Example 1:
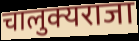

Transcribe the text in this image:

चालुक्यराजा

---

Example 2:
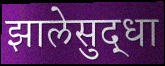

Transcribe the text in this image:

झालेसुद्धा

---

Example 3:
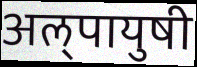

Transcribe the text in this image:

अल्पायुषी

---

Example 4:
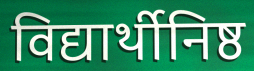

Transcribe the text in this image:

विद्यार्थीनिष्ठ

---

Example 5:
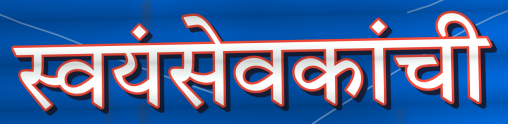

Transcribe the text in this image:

स्वयंसेवकांची